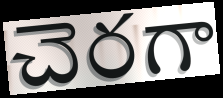
చెరగా